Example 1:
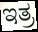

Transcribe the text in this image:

ಇತ್ರ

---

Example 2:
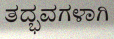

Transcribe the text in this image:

ತದ್ಭವಗಳಾಗಿ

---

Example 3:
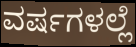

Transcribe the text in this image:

ವರ್ಷಗಳಲ್ಲೆ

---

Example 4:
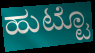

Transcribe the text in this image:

ಹುಟ್ಟೊ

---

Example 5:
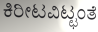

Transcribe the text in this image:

ಕಿರೀಟವಿಟ್ಟಂತೆ